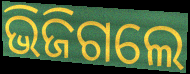
ଭିଜିଗଲେ